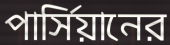
পার্সিয়ানের